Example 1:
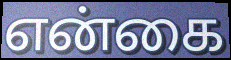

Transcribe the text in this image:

என்கை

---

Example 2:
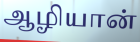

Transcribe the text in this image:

ஆழியான்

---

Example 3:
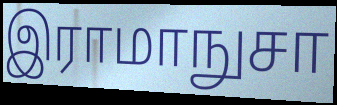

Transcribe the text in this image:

இராமாநுசா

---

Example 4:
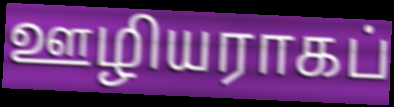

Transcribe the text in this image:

ஊழியராகப்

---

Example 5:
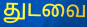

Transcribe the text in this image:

துடவை